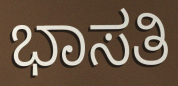
ಭಾಸತಿ